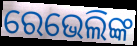
ରେଭେଲିଙ୍କ